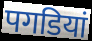
पगडियां